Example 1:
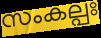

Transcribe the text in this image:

സംകല്പഃ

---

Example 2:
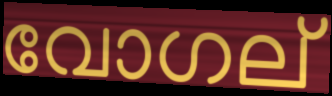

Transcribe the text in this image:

വോഗല്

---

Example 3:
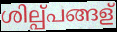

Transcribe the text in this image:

ശില്പ്പങ്ങള്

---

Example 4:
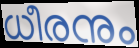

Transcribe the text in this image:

ധീരനും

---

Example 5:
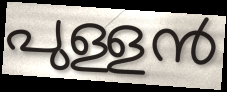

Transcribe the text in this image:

പുള്ളൻ